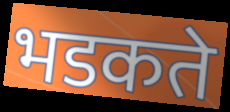
भडकते